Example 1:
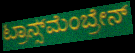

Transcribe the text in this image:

ಟ್ರಾನ್ಸ್‌ಮೆಂಬ್ರೇನ್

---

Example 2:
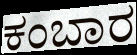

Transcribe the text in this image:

ಕಂಬಾರ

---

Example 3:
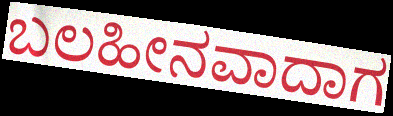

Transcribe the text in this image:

ಬಲಹೀನವಾದಾಗ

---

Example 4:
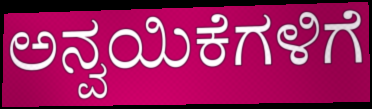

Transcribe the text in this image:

ಅನ್ವಯಿಕೆಗಳಿಗೆ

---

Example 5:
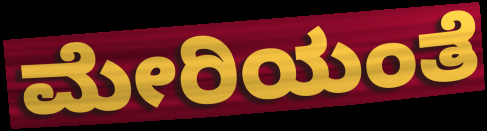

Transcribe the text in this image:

ಮೇರಿಯಂತೆ